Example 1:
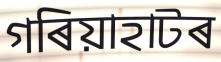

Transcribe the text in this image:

গৰিয়াহাটৰ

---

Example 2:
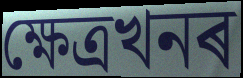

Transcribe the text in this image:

ক্ষেত্ৰখনৰ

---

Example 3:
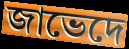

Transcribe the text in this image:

জাভেদে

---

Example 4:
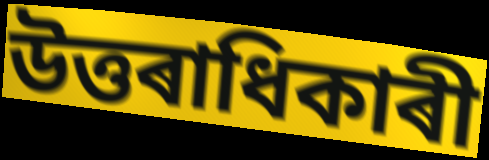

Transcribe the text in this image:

উত্তৰাধিকাৰী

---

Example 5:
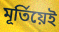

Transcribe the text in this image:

মূৰ্তিয়েই